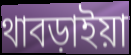
থাবড়াইয়া